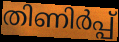
തിണിർപ്പ്